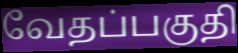
வேதப்பகுதி